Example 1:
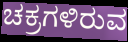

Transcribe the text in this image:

ಚಕ್ರಗಳಿರುವ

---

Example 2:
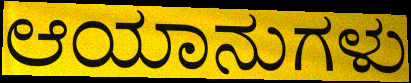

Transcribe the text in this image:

ಆಯಾನುಗಳು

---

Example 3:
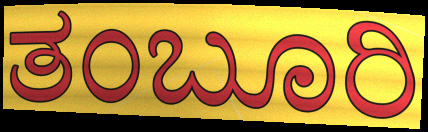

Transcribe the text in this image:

ತಂಬೂರಿ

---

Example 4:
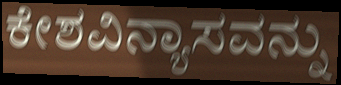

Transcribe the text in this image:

ಕೇಶವಿನ್ಯಾಸವನ್ನು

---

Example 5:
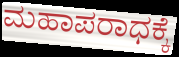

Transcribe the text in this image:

ಮಹಾಪರಾಧಕ್ಕೆ